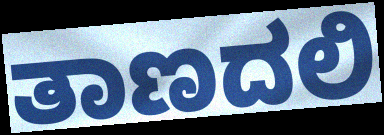
ತಾಣದಲಿ